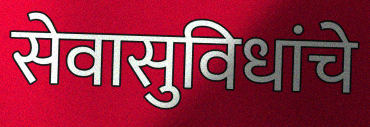
सेवासुविधांचे